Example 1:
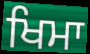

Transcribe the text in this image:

ਖਿਮਾ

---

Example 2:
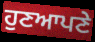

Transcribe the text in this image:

ਹੁਣਆਪਣੇ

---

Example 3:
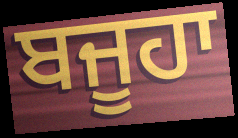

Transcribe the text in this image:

ਬਜੂਹਾ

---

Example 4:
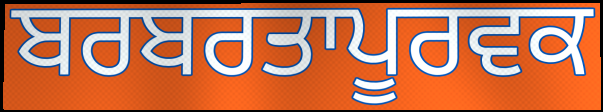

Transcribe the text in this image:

ਬਰਬਰਤਾਪੂਰਵਕ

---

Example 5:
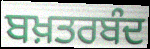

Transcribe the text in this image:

ਬਖ਼ਤਰਬੰਦ